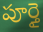
పూర్తై